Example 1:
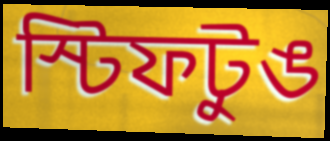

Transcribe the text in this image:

স্টিফটুঙ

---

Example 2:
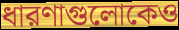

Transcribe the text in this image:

ধারণাগুলোকেও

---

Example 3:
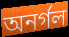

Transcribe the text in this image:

অনর্গল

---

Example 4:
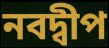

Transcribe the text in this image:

নবদ্বীপ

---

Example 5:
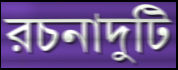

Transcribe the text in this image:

রচনাদুটি